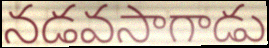
నడవసాగాడు